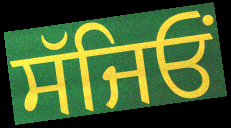
ਸੱਜਿਓਂ